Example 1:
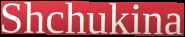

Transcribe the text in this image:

Shchukina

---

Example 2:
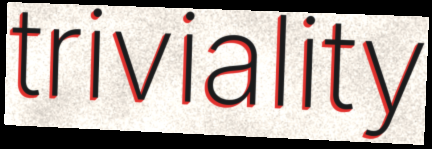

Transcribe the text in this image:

triviality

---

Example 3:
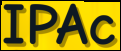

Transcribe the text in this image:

IPAc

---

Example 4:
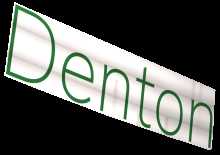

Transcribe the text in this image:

Denton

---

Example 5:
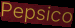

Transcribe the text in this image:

Pepsico